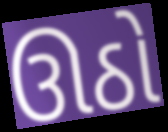
ઊઠો